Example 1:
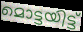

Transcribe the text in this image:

മൊട്ടയിട്ട്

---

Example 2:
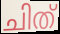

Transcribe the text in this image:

ചിത്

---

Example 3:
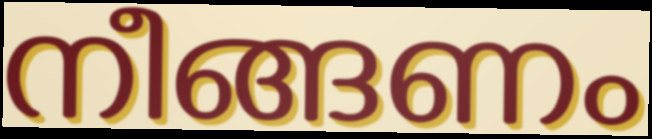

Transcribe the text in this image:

നീങ്ങണം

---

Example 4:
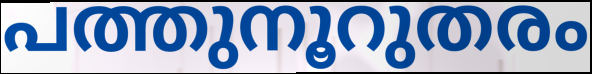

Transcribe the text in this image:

പത്തുനൂറുതരം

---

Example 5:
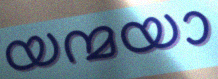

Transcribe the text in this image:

യന്മയാ